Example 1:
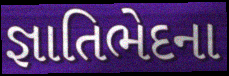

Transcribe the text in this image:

જ્ઞાતિભેદના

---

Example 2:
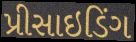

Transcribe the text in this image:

પ્રીસાઇડિંગ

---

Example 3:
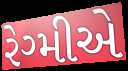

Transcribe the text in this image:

રેગ્મીએ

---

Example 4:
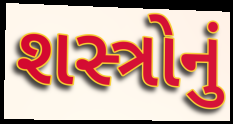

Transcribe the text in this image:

શસ્ત્રોનું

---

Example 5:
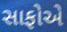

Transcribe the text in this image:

સાફોએ